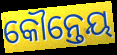
କୌନ୍ତେୟ